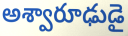
అశ్వారూఢుడై